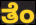
ತೆಂ